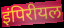
इंपिरीयल